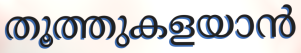
തൂത്തുകളയാൻ